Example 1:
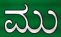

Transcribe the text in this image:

ಮು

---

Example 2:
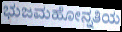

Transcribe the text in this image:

ಭುಜಮಹೋನ್ನತಿಯ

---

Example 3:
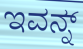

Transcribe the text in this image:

ಇವನ್ನ್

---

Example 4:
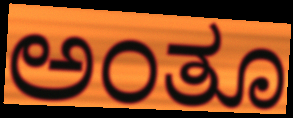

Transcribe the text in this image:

ಅಂತೂ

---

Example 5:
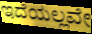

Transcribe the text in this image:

ಇದೆಯಲ್ಲವೇ